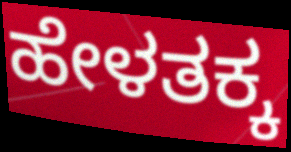
ಹೇಳತಕ್ಕ